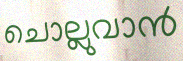
ചൊല്ലുവാൻ